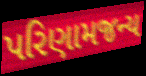
પરિણામજન્ય